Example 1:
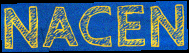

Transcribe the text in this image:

NACEN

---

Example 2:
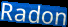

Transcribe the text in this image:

Radon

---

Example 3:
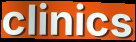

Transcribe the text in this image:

clinics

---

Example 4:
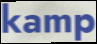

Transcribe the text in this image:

kamp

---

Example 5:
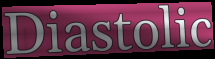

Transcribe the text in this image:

Diastolic